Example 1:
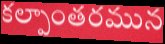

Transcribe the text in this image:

కల్పాంతరమున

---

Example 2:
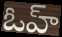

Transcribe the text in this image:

ఓహ్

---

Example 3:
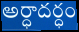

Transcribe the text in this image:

అర్ధాదర్ధం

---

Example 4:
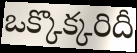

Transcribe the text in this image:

ఒక్కొక్కరిదీ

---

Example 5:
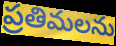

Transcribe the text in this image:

ప్రతిమలను